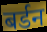
बर्डन